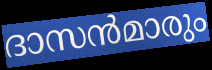
ദാസൻമാരും